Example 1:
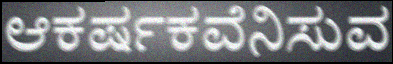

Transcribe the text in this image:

ಆಕರ್ಷಕವೆನಿಸುವ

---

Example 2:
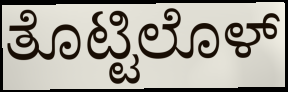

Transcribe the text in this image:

ತೊಟ್ಟಿಲೊಳ್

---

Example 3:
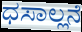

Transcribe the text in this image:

ಧಸಾಲ್ಲನೆ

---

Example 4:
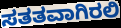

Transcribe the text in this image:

ಸತತವಾಗಿರಲಿ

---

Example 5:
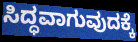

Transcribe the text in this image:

ಸಿದ್ಧವಾಗುವುದಕ್ಕೆ